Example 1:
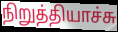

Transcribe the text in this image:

நிறுத்தியாச்சு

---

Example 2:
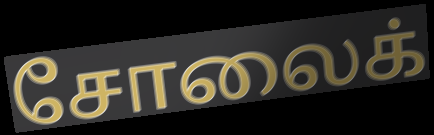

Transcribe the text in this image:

சோலைக்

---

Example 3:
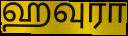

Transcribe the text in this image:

ஹவுரா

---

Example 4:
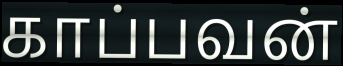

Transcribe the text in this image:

காப்பவன்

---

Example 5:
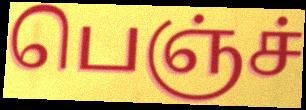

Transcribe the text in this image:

பெஞ்ச்